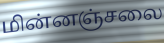
மின்னஞ்சலை